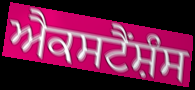
ਐਕਸਟੈਂਸ਼ੰਸ